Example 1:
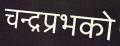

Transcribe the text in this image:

चन्द्रप्रभको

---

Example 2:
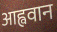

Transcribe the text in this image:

आह्ववान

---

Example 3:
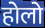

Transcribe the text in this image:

होलो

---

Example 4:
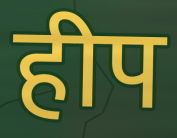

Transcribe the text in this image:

हीप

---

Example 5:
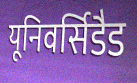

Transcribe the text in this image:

यूनिवर्सिडैड